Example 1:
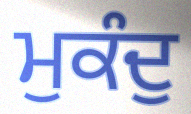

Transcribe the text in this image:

ਮੁਕੰਦੁ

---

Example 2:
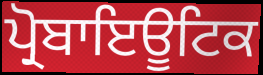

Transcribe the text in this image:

ਪ੍ਰੋਬਾਇਊਟਿਕ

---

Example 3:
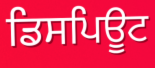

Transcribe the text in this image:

ਡਿਸਪਿਊਟ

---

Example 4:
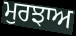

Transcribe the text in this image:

ਮੁਰਝਾਅ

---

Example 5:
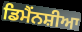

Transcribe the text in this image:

ਡਿਮੈਂਨਸ਼ੀਆ